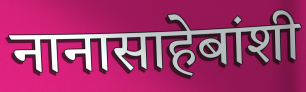
नानासाहेबांशी